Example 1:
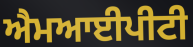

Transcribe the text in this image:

ਐਮਆਈਪੀਟੀ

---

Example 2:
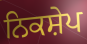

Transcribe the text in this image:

ਨਿਕਸ਼ੇਪ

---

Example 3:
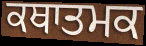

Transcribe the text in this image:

ਕਥਾਤਮਕ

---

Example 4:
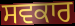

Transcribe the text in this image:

ਸਵਕਾਰ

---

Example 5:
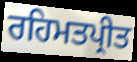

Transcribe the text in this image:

ਰਹਿਮਤਪ੍ਰੀਤ